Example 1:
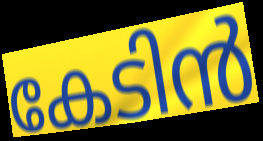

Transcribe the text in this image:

കേടിൻ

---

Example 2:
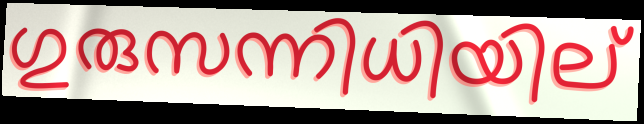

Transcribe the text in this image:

ഗുരുസന്നിധിയില്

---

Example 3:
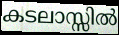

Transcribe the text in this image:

കടലാസ്സിൽ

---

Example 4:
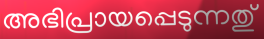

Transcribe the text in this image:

അഭിപ്രായപ്പെടുന്നതു്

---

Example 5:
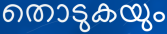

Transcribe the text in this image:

തൊടുകയും